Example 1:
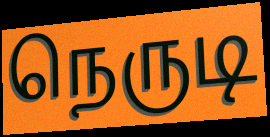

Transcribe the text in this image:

நெருடி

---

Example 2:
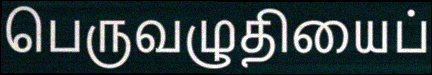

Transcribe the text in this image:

பெருவழுதியைப்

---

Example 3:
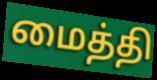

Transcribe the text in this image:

மைத்தி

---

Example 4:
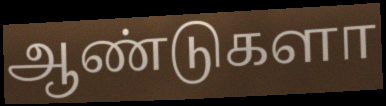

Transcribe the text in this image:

ஆண்டுகளா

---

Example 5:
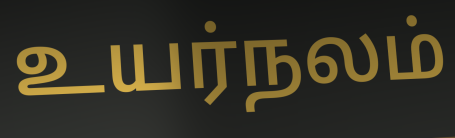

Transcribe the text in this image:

உயர்நலம்